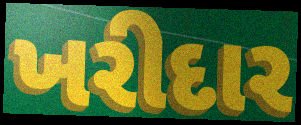
ખરીદાર